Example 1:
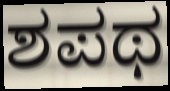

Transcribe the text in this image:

ಶಪಥ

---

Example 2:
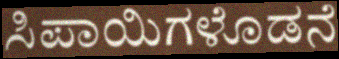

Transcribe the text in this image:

ಸಿಪಾಯಿಗಳೊಡನೆ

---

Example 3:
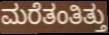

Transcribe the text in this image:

ಮರೆತಂತಿತ್ತು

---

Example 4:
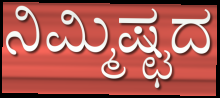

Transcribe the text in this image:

ನಿಮ್ಮಿಷ್ಟದ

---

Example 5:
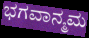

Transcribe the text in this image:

ಭಗವಾನ್ಮಮ